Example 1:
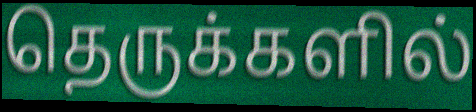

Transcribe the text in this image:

தெருக்களில்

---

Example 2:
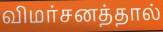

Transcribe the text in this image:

விமர்சனத்தால்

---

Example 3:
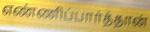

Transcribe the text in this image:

எண்ணிப்பார்த்தான்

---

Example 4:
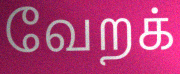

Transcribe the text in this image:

வேறக்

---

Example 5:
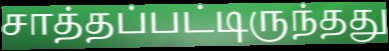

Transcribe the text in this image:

சாத்தப்பட்டிருந்தது